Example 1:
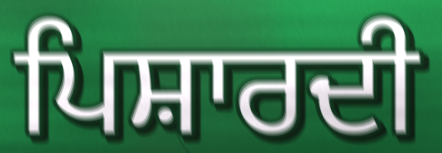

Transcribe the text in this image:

ਪਿਸ਼ਾਰਦੀ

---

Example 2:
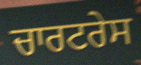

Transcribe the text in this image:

ਚਾਰਟਰੇਸ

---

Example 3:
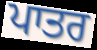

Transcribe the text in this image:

ਪਾਤਰ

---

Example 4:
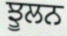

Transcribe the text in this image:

ਝੂਲਨ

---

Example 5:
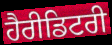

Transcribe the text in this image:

ਹੈਰੀਡਿਟਰੀ